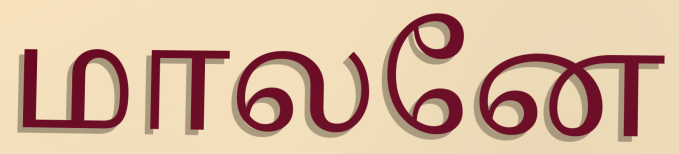
மாலனே